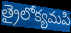
త్రైలోక్యమపి